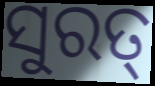
ସୁରତ୍